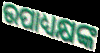
ଉପାଧ୍ୟକ୍ଷଙ୍କ